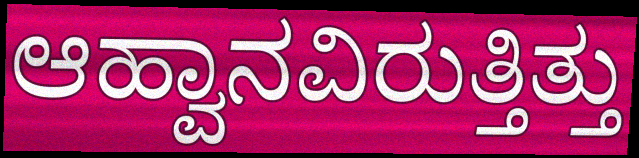
ಆಹ್ವಾನವಿರುತ್ತಿತ್ತು